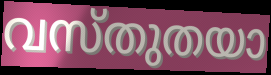
വസ്തുതയാ